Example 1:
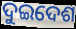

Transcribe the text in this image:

ଦୁଇଦେଶ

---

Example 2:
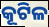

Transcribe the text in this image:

କୂଟିଳ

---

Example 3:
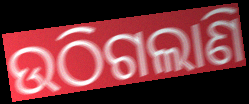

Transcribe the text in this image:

ଉଠିଗଲାଣି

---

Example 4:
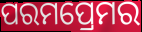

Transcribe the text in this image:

ପରମପ୍ରେମର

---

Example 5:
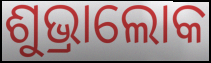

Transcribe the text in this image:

ଶୁଭ୍ରାଲୋକ